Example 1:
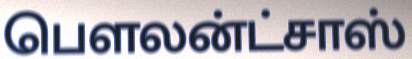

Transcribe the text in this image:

பௌலன்ட்சாஸ்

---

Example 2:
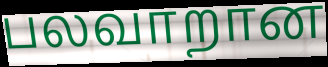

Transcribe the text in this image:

பலவாறான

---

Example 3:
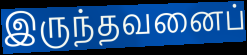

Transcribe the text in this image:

இருந்தவனைப்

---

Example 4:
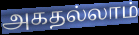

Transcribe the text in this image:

அகதல்லாம்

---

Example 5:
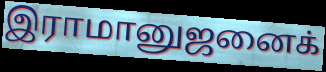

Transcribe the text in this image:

இராமானுஜனைக்